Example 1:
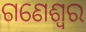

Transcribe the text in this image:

ଗଣେଶ୍ୱର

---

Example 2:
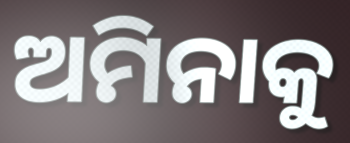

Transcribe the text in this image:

ଅମିନାକୁ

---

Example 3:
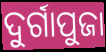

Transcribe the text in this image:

ଦୁର୍ଗାପୁଜା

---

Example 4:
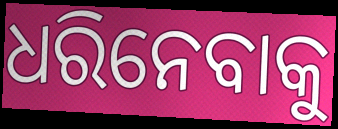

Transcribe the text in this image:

ଧରିନେବାକୁ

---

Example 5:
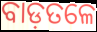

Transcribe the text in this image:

ବାଡ଼ତଳେ